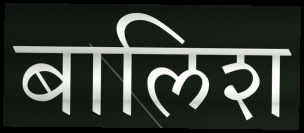
बालिश